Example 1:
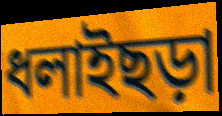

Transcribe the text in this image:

ধলাইছড়া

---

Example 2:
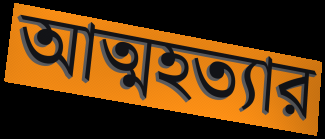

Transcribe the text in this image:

আত্মহত্যার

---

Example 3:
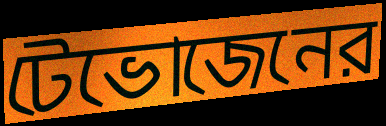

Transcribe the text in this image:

টেভোজেনের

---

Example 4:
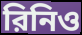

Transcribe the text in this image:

রিনিও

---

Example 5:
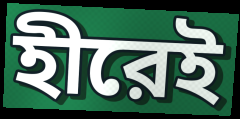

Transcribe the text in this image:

হীরেই